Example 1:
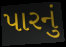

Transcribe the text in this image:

પારનું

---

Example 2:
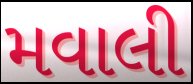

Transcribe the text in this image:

મવાલી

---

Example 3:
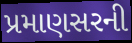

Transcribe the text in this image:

પ્રમાણસરની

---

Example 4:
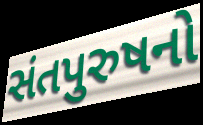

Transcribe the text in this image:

સંતપુરુષનો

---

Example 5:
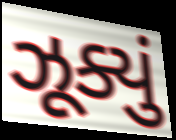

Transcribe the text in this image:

ઝૂક્યું